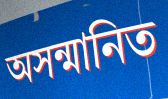
অসন্মানিত